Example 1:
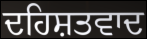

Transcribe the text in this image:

ਦਹਿਸ਼ਤਵਾਦ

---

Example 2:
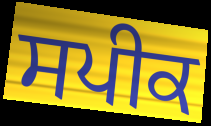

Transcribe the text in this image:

ਸਪੀਕ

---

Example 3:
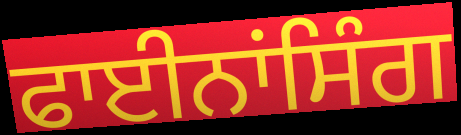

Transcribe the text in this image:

ਫਾਈਨਾਂਸਿੰਗ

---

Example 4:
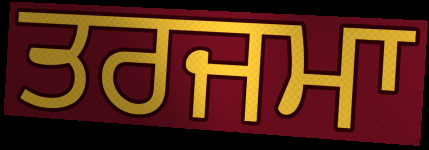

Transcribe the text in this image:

ਤਰਜਮਾ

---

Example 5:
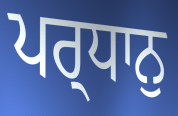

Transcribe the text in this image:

ਪਰ੍ਧਾਨੁ